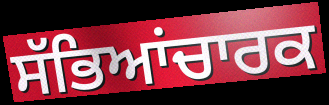
ਸੱਭਿਆਂਚਾਰਕ